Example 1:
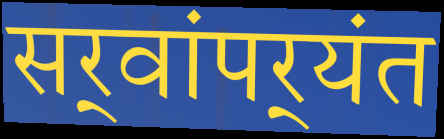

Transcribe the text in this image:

सर्वांपर्यंत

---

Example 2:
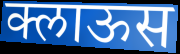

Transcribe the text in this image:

क्लाऊस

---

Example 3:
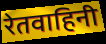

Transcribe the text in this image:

रेतवाहिनी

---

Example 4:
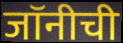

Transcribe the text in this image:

जॉनीची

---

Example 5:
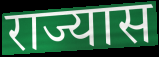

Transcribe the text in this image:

राज्यास